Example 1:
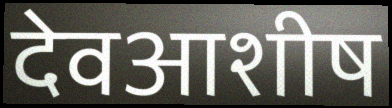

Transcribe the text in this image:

देवआशीष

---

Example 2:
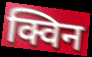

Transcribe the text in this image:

क्विन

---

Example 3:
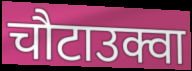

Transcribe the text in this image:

चौटाउक्वा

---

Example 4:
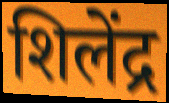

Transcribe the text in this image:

शिलेंद्र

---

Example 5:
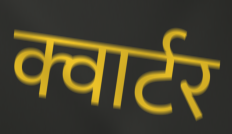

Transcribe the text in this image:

क्‍वार्टर